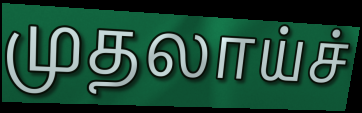
முதலாய்ச்